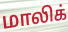
மாலிக்